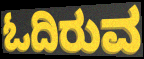
ಓದಿರುವ